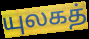
யுலகத்